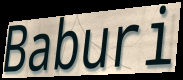
Baburi